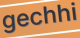
gechhi